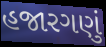
હજારગણું